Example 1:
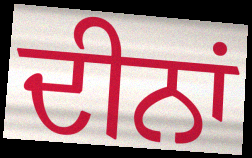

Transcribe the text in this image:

ਦੀਨਾਂ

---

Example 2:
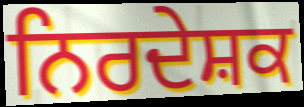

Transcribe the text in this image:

ਨਿਰਦੇਸ਼ਕ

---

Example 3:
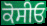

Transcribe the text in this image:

ਕੋਸੀਓ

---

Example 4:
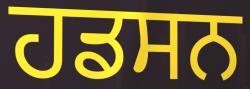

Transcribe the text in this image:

ਹਡਸਨ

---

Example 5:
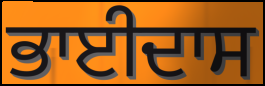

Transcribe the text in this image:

ਭਾਈਦਾਸ